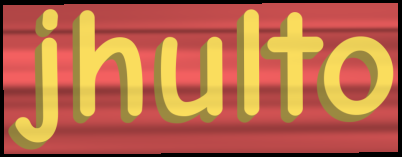
jhulto